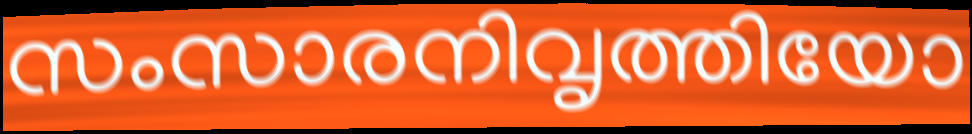
സംസാരനിവൃത്തിയോ